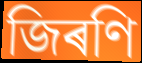
জিৰণি